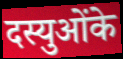
दस्युओंके